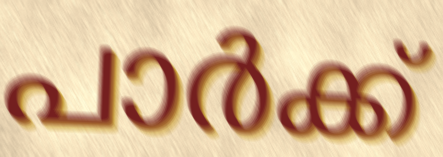
പാർക്ക്